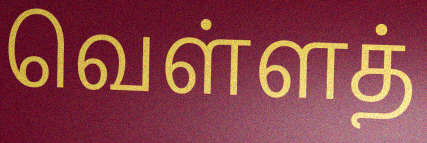
வெள்ளத்